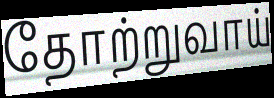
தோற்றுவாய்